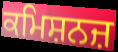
ਕਮਿਸ਼ਨਜ਼